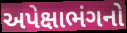
અપેક્ષાભંગનો